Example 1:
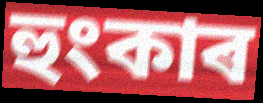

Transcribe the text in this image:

হুংকাৰ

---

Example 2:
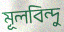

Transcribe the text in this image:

মূলবিন্দু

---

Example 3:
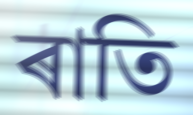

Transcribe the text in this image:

ৰাতি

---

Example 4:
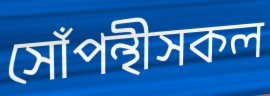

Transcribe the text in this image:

সোঁপন্থীসকল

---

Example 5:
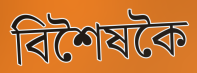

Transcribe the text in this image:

বিশৈষকৈ